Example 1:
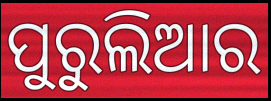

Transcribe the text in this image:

ପୁରୁଲିଆର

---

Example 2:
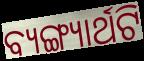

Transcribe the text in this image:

ବ୍ୟଙ୍ଗ୍ୟାର୍ଥଟି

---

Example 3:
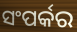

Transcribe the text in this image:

ସଂପର୍କର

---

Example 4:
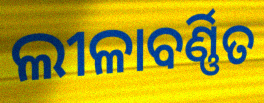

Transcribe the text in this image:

ଲୀଳାବର୍ଣ୍ଣିତ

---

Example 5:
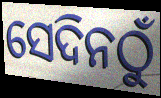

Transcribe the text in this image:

ସେଦିନଠୁଁ